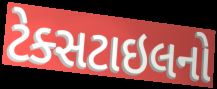
ટેક્સટાઇલનો